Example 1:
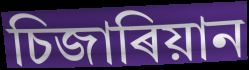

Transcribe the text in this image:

চিজাৰিয়ান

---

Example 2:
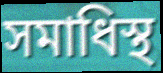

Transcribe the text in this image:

সমাধিস্থ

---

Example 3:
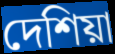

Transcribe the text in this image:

দেশিয়া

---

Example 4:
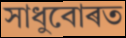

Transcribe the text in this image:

সাধুবোৰত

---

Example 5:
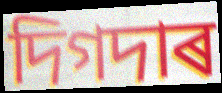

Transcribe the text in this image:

দিগদাৰ